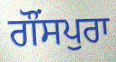
ਗੌਂਸਪੁਰਾ